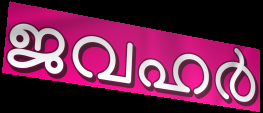
ജവഹർ